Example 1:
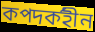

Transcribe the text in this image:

কপদর্কহীন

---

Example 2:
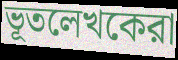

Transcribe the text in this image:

ভূতলেখকেরা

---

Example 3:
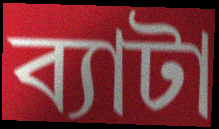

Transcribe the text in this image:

ব্যাটা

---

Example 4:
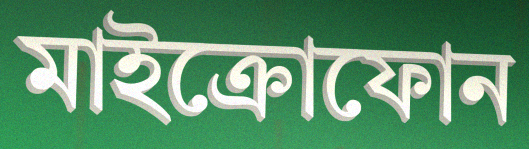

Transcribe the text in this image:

মাইক্রোফোন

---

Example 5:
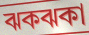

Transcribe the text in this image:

ঝকঝকা